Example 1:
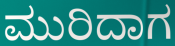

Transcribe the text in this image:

ಮುರಿದಾಗ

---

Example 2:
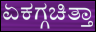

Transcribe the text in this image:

ಏಕಗ್ಗಚಿತ್ತಾ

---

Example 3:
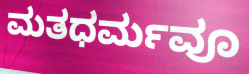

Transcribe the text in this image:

ಮತಧರ್ಮವೂ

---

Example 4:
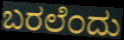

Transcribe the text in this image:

ಬರಲೆಂದು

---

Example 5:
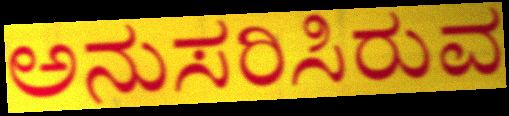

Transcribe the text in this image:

ಅನುಸರಿಸಿರುವ